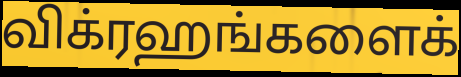
விக்ரஹங்களைக்